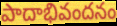
పాదాభివందనం